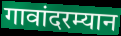
गावांदरम्यान